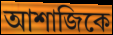
আশাজিকে